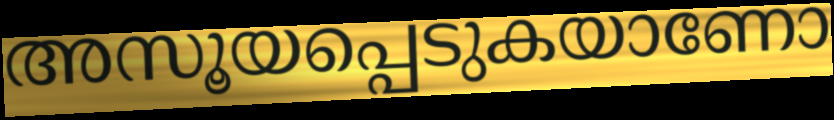
അസൂയപ്പെടുകയാണോ